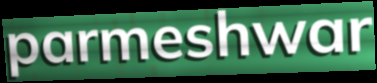
parmeshwar